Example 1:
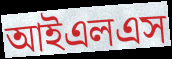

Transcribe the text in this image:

আইএলএস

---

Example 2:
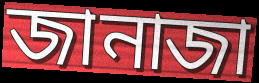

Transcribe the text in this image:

জানাজা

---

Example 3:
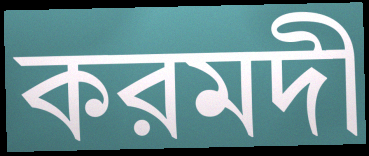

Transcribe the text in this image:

করমদী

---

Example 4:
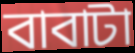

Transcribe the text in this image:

বাবাটা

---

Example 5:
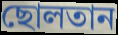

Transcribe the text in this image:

ছোলতান